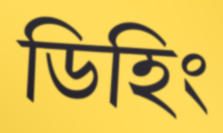
ডিহিং